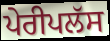
ਪੇਰੀਪਲੱਸ